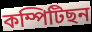
কম্পিটিছন